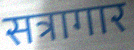
सत्रागार